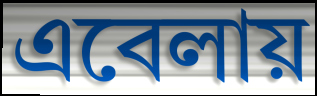
এবেলায়